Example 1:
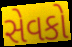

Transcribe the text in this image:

સેવકો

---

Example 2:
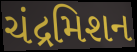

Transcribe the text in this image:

ચંદ્રમિશન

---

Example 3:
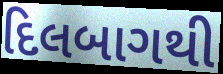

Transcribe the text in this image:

દિલબાગથી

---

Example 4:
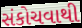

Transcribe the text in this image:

સંકોચવાથી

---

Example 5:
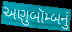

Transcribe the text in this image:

અણુબૉમ્બનું